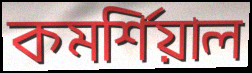
কমর্শিয়াল